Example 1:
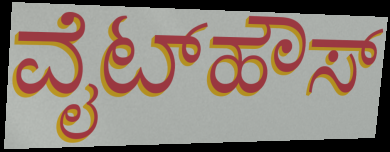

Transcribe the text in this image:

ವೈಟ್‌ಹೌಸ್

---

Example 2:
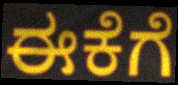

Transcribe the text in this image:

ಈಕೆಗೆ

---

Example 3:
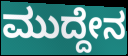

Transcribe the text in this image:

ಮುದ್ದೇನ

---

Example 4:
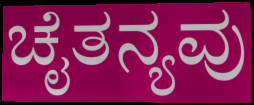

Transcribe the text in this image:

ಚೈತನ್ಯವು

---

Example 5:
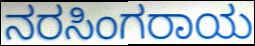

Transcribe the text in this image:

ನರಸಿಂಗರಾಯ